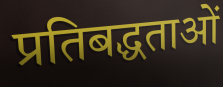
प्रतिबद्धताओं